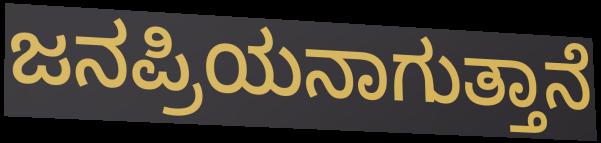
ಜನಪ್ರಿಯನಾಗುತ್ತಾನೆ